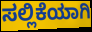
ಸಲ್ಲಿಕೆಯಾಗಿ